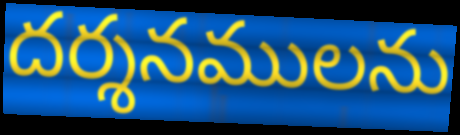
దర్శనములను